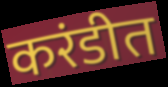
करंडीत